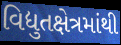
વિદ્યુતક્ષેત્રમાંથી